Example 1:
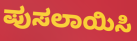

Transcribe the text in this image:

ಪುಸಲಾಯಿಸಿ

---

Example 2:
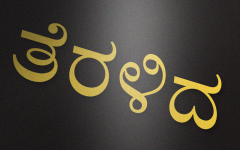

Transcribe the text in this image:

ತೆರಳಿದ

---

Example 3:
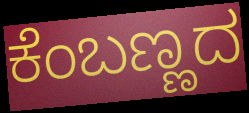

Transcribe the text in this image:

ಕೆಂಬಣ್ಣದ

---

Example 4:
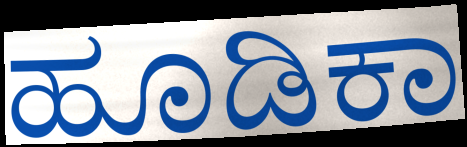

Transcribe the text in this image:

ಹೂಡಿಕಾ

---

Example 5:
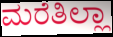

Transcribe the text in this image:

ಮರೆತಿಲ್ಲಾ